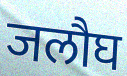
जलौघ